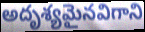
అదృశ్యమైనవిగాని